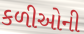
કળીઓની